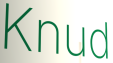
Knud